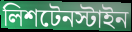
লিশটেনস্টাইন